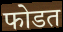
फोडत